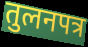
तुलनपत्र